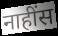
नाहींस